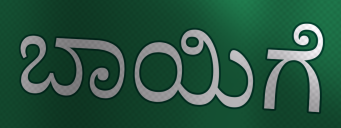
ಬಾಯಿಗೆ